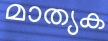
മാത്യക